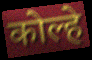
कोल्हे